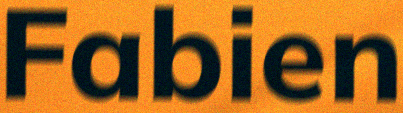
Fabien